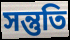
সন্তুতি